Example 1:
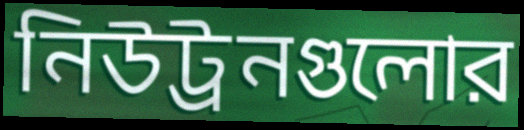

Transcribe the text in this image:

নিউট্রনগুলোর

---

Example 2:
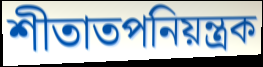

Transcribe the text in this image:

শীতাতপনিয়ন্ত্রক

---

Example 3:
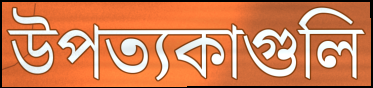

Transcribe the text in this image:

উপত্যকাগুলি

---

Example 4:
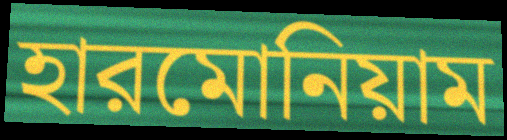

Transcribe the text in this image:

হারমোনিয়াম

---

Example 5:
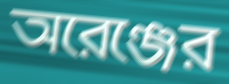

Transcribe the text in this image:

অরেঞ্জের